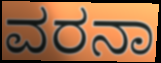
ವರನಾ